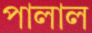
পালাল